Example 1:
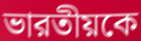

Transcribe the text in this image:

ভারতীয়কে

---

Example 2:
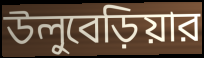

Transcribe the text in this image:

উলুবেড়িয়ার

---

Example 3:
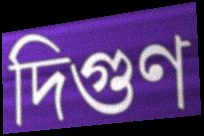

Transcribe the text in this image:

দিগুণ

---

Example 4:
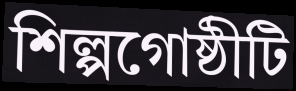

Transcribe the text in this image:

শিল্পগোষ্ঠীটি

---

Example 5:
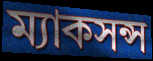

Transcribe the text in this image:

ম্যাকসন্স